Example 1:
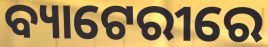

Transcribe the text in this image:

ବ୍ୟାଟେରୀରେ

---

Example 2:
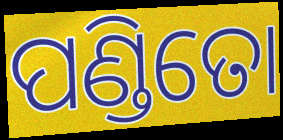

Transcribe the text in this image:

ପଣ୍ଡିତୋ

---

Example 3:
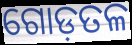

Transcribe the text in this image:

ଗୋଡ଼ତଳ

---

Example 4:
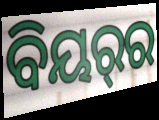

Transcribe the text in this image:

ବିୟର୍‌ର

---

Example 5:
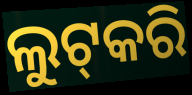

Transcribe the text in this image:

ଲୁଟ୍‌କରି